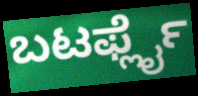
ಬಟರ್ಫ್ಲೈ